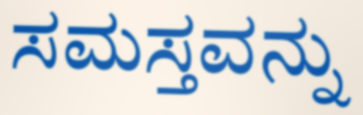
ಸಮಸ್ತವನ್ನು